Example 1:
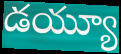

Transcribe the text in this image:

డయ్యూ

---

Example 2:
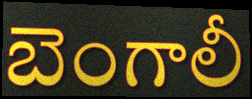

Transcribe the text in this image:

బెంగాలీ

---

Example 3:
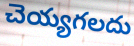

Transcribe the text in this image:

చెయ్యగలదు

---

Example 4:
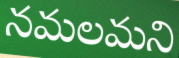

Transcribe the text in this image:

నమలమని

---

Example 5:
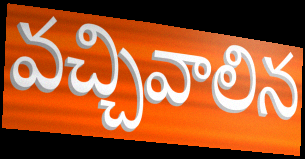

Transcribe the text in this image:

వచ్చివాలిన